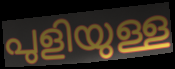
പുളിയുള്ള